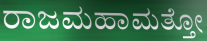
ರಾಜಮಹಾಮತ್ತೋ